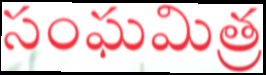
సంఘమిత్ర